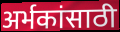
अर्भकांसाठी